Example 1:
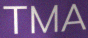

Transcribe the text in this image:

TMA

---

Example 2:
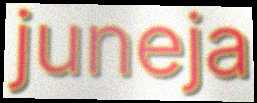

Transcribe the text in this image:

juneja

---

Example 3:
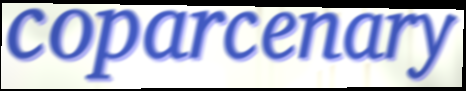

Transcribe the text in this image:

coparcenary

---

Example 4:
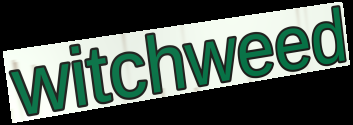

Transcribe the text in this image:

witchweed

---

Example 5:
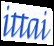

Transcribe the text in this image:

ittai